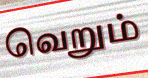
வெறும்